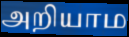
அறியாம